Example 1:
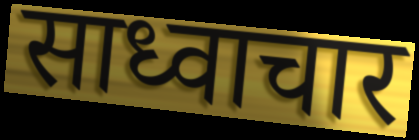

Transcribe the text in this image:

साध्वाचार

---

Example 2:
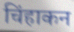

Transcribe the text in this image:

चिंहाकन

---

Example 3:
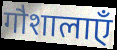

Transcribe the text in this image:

गौशालाएँ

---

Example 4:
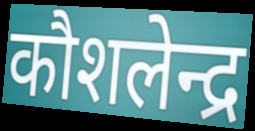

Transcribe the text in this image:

कौशलेन्द्र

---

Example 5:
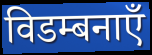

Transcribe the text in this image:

विडम्बनाएँ